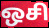
ஒசி